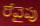
రోవైపు